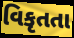
વિકૃતતા